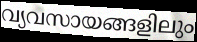
വ്യവസായങ്ങളിലും